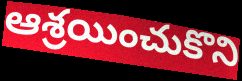
ఆశ్రయించుకొని